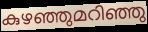
കുഴഞ്ഞുമറിഞ്ഞു